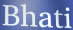
Bhati